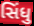
સિંધુ